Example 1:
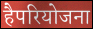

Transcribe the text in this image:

हैपरियोजना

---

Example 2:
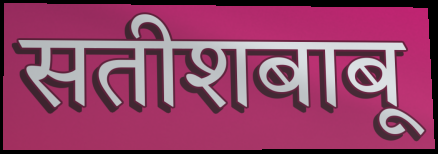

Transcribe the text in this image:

सतीशबाबू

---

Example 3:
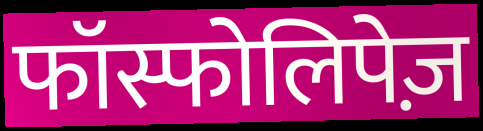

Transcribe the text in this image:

फॉस्फोलिपेज़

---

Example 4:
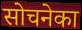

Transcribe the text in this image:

सोचनेका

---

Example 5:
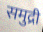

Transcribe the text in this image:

समुद्री